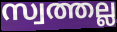
സ്വത്തല്ല